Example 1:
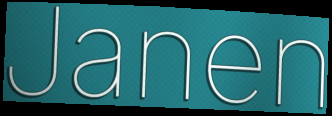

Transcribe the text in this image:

Janen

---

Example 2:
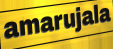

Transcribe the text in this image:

amarujala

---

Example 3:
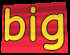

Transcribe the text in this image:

big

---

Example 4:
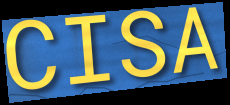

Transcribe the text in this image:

CISA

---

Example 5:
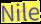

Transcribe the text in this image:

Nile